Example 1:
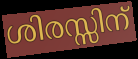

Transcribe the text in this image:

ശിരസ്സിന്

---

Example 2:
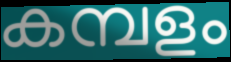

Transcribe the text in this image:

കമ്പളം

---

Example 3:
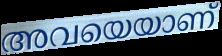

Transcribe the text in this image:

അവയെയാണ്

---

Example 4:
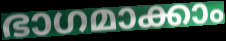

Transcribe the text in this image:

ഭാഗമാക്കാം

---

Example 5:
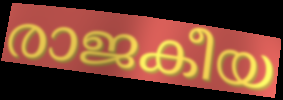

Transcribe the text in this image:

രാജകീയ